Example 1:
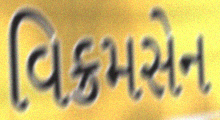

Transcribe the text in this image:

વિક્રમસેન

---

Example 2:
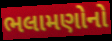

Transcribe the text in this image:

ભલામણોનો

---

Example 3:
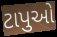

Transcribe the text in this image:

ટાપુઓ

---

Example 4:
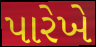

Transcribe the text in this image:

પારેખે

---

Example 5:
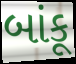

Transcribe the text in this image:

બાંકૂ